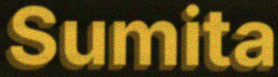
Sumita